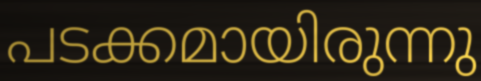
പടക്കമായിരുന്നു